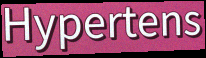
Hypertens